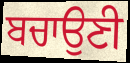
ਬਚਾਉਣੀ